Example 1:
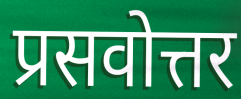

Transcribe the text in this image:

प्रसवोत्तर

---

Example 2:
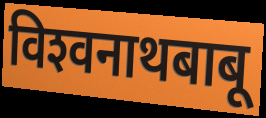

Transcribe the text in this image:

विश्‍वनाथबाबू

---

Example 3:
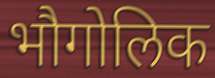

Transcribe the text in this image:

भौगोलिक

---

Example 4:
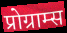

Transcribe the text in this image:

प्रोग्राम्स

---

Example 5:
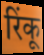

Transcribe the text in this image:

रिंकू